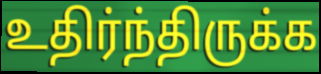
உதிர்ந்திருக்க